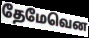
தேமேவென